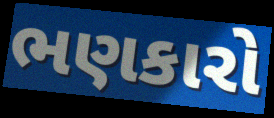
ભણકારો